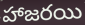
హాజరయి